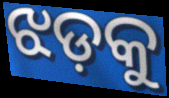
ଝଡ଼କୁ